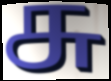
சு